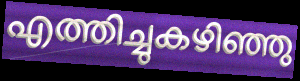
എത്തിച്ചുകഴിഞ്ഞു